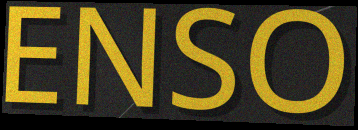
ENSO